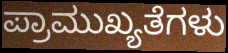
ಪ್ರಾಮುಖ್ಯತೆಗಳು